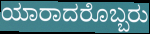
ಯಾರಾದರೊಬ್ಬರು